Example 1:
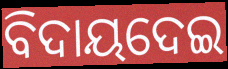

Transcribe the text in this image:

ବିଦାୟଦେଇ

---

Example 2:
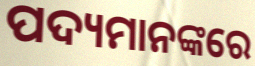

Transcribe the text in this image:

ପଦ୍ୟମାନଙ୍କରେ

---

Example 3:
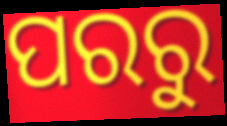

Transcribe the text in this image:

ପରରୁ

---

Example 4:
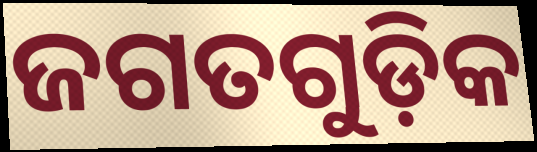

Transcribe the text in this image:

ଜଗତଗୁଡ଼ିକ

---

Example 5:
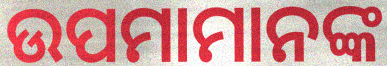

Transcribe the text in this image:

ଉପମାମାନଙ୍କ